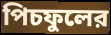
পিচফুলের